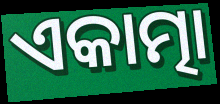
ଏକାତ୍ମା